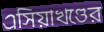
এসিয়াখণ্ডের